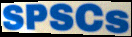
SPSCs